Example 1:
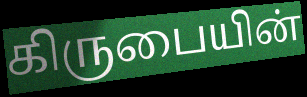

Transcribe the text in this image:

கிருபையின்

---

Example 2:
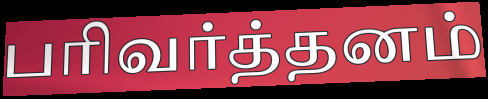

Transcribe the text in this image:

பரிவர்த்தனம்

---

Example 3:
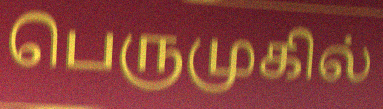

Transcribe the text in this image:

பெருமுகில்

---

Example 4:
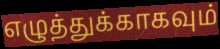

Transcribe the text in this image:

எழுத்துக்காகவும்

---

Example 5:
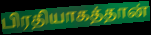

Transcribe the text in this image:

பிரதியாகத்தான்